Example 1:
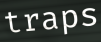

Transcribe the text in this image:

traps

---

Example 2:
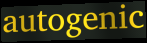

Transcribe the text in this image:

autogenic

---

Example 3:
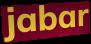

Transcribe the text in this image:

jabar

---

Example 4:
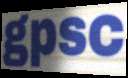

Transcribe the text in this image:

gpsc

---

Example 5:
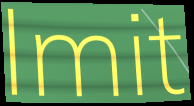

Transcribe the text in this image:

Imit